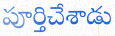
పూర్తిచేశాడు